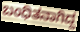
ಬಂಧಿತನಾಗಿದ್ದ